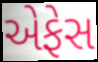
એફેસ